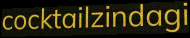
cocktailzindagi